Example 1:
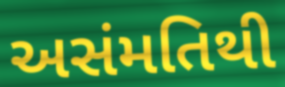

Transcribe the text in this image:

અસંમતિથી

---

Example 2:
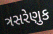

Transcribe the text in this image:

ત્રસરેણુક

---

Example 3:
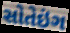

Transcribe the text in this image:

સોતેઇંગ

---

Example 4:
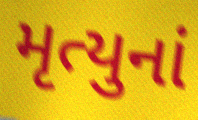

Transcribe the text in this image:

મૃત્યુનાં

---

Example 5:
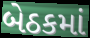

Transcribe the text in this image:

બેઠકમાં